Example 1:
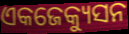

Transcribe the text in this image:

ଏକଜେକ୍ୟୁସନ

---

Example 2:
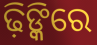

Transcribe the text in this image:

ଢ଼ିଙ୍କିରେ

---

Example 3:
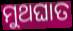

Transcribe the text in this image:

ମୁଥଘାତ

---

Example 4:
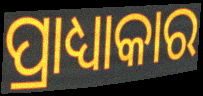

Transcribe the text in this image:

ପ୍ରାଧ୍ୟାକାର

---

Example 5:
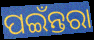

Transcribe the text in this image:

ପଇଁନ୍ତରା